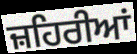
ਜ਼ਹਿਰੀਆਂ